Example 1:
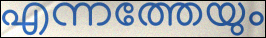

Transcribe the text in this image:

എന്നത്തേയും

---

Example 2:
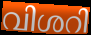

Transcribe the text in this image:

വിശറി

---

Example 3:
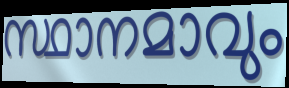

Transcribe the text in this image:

സ്ഥാനമാവും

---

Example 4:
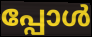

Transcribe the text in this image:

പ്പോൾ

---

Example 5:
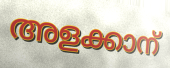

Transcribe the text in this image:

അളക്കാന്